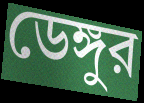
ডেঙ্গুর